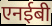
एनईबी